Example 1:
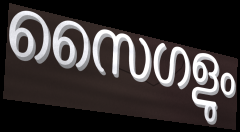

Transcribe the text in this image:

സൈഗളും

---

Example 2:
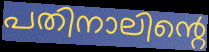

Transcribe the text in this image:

പതിനാലിന്റെ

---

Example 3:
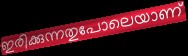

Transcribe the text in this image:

ഇരിക്കുന്നതുപോലെയാണ്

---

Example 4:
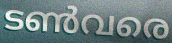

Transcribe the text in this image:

ടൺവരെ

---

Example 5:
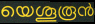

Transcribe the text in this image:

യെശൂരൂൻ